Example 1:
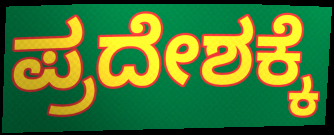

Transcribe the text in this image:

ಪ್ರದೇಶಕ್ಕೆ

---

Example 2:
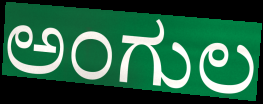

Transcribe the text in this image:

ಅಂಗುಲ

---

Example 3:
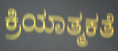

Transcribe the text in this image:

ಕ್ರಿಯಾತ್ಮಕತೆ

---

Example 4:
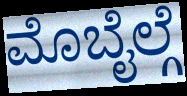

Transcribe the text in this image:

ಮೊಬೈಲ್ಗೆ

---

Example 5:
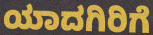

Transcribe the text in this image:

ಯಾದಗಿರಿಗೆ